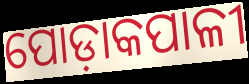
ପୋଡ଼ାକପାଳୀ